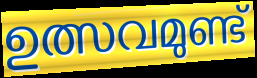
ഉത്സവമുണ്ട്